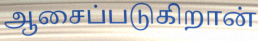
ஆசைப்படுகிறான்